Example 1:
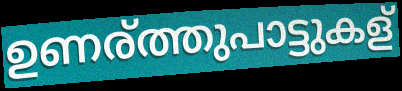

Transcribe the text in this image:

ഉണര്ത്തുപാട്ടുകള്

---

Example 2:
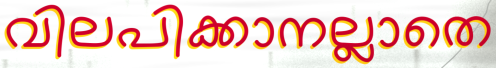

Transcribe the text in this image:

വിലപിക്കാനല്ലാതെ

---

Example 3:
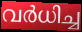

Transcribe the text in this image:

വർധിച്ച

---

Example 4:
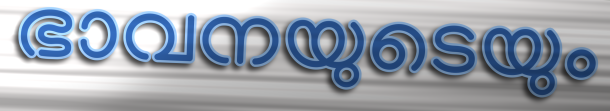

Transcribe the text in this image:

ഭാവനയുടെയും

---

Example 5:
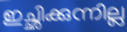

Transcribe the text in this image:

ഇച്ഛിക്കുന്നില്ല